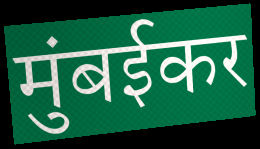
मुंबईकर